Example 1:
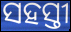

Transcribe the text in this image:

ସହସ୍ତୀ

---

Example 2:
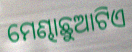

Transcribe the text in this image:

ମେଣ୍ଢାଛୁଆଟିଏ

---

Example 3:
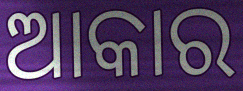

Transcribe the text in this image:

ଆକାର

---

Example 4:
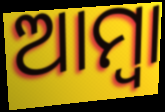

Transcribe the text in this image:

ଆମ୍ବା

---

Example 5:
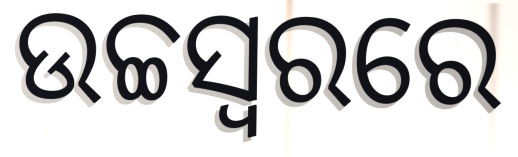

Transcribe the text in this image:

ଉଚ୍ଚସ୍ୱରରେ